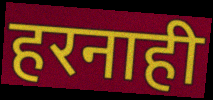
हरनाही